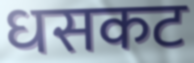
धसकट